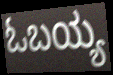
ಓಬಯ್ಯ